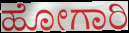
ಹೋಗಾರಿ